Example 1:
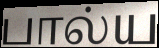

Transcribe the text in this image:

பால்ய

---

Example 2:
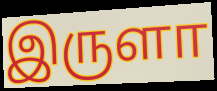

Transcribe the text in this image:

இருளா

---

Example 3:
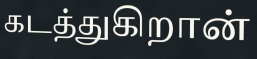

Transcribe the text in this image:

கடத்துகிறான்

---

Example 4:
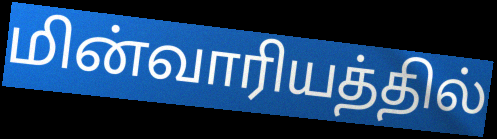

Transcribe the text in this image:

மின்வாரியத்தில்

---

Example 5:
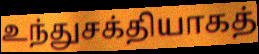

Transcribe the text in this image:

உந்துசக்தியாகத்